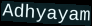
Adhyayam